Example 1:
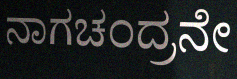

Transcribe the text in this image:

ನಾಗಚಂದ್ರನೇ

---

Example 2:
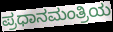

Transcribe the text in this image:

ಪ್ರಧಾನಮಂತ್ರಿಯ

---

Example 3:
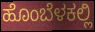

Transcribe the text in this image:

ಹೊಂಬೆಳಕಲ್ಲಿ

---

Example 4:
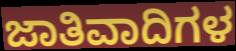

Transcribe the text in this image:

ಜಾತಿವಾದಿಗಳ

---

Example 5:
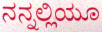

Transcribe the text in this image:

ನನ್ನಲ್ಲಿಯೂ